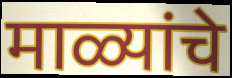
माळ्यांचे